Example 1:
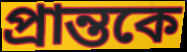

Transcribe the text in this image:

প্রান্তকে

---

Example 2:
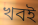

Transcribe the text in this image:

খবই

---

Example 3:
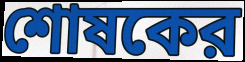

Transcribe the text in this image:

শোষকের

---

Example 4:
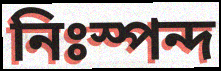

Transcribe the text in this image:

নিঃস্পন্দ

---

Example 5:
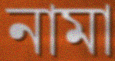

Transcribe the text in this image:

নামা